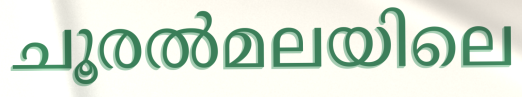
ചൂരൽമലയിലെ